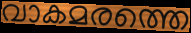
വാകമരത്തെ